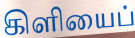
கிளியைப்